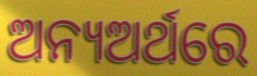
ଅନ୍ୟଅର୍ଥରେ